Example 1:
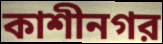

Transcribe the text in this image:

কাশীনগর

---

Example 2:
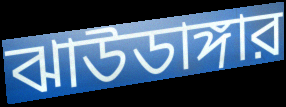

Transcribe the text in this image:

ঝাউডাঙ্গার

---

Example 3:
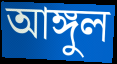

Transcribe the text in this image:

আঙ্গুল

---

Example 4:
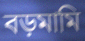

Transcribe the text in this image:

বড়মামি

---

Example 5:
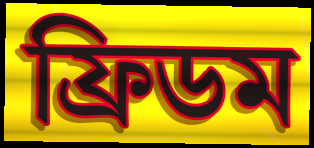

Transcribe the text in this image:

ফ্রিডম